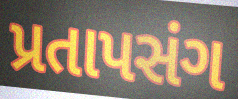
પ્રતાપસંગ